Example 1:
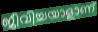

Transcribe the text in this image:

ജീവിച്ചയാളാണ്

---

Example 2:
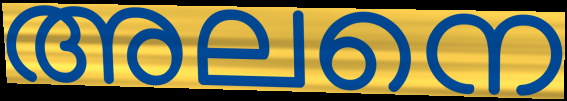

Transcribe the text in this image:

അലനെ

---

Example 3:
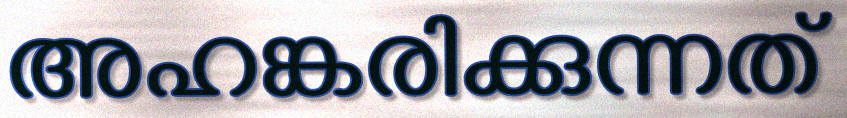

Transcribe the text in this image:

അഹങ്കരിക്കുന്നത്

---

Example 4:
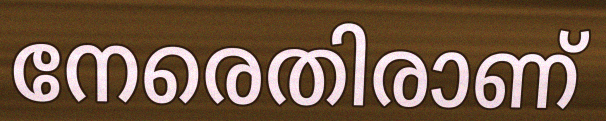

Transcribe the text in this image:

നേരെതിരാണ്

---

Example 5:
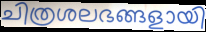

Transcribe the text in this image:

ചിത്രശലഭങ്ങളായി